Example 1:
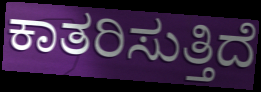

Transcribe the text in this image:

ಕಾತರಿಸುತ್ತಿದೆ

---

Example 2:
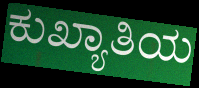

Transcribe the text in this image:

ಕುಖ್ಯಾತಿಯ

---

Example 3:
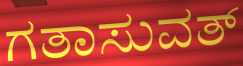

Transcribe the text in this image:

ಗತಾಸುವತ್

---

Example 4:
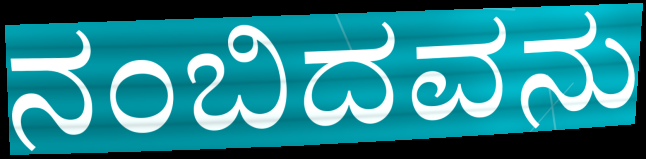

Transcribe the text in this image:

ನಂಬಿದವನು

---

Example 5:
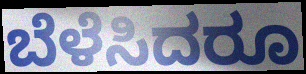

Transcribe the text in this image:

ಬೆಳೆಸಿದರೂ